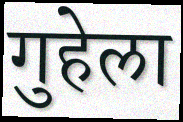
गुहेला